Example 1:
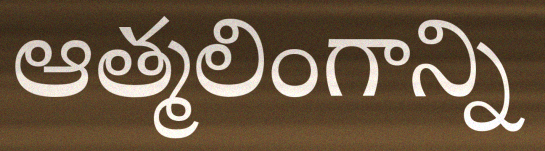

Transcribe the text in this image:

ఆత్మలింగాన్ని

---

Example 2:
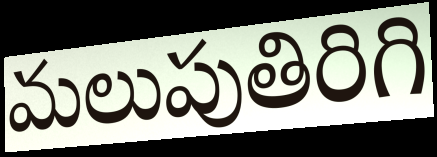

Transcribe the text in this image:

మలుపుతిరిగి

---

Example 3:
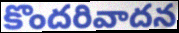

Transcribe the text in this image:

కొందరివాదన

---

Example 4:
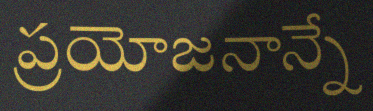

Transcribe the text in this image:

ప్రయోజనాన్నే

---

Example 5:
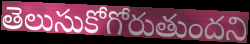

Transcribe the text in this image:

తెలుసుకోగోరుతుందని